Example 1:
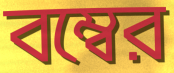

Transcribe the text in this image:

বম্বের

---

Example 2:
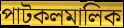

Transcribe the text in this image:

পাটকলমালিক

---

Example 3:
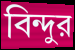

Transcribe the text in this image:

বিন্দুর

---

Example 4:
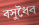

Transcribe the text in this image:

বসুধৈব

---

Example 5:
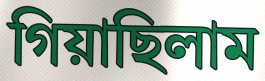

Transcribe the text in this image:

গিয়াছিলাম